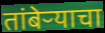
तांबेऱ्याचा